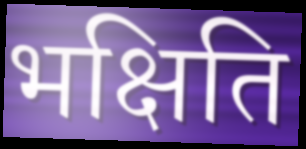
भक्षिति